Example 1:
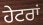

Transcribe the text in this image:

ਹੇਟਰਾਂ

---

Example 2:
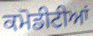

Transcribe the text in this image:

ਕਮੋਡੀਟੀਆਂ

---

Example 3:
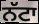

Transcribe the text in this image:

ਨੱਟਾ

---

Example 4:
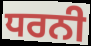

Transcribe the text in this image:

ਧਰਨੀ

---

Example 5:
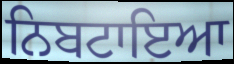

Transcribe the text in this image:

ਨਿਬਟਾਇਆ